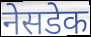
नेसडेक